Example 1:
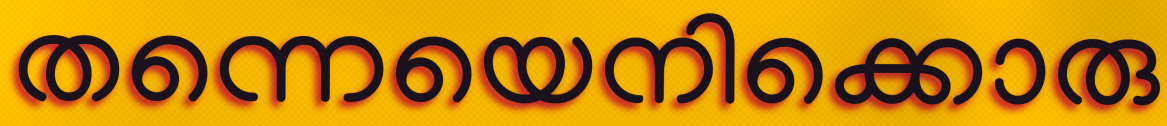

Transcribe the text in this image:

തന്നെയെനിക്കൊരു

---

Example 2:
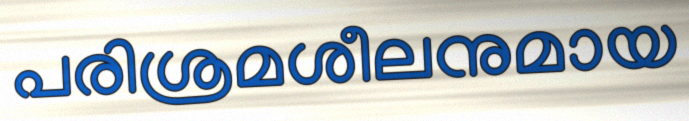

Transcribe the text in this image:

പരിശ്രമശീലനുമായ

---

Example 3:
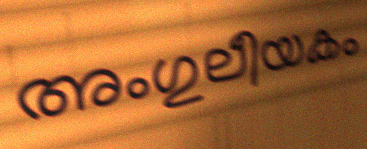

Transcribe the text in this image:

അംഗുലീയകം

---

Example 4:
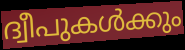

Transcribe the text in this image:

ദ്വീപുകൾക്കും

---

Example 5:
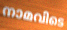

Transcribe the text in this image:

നാമവിടെ